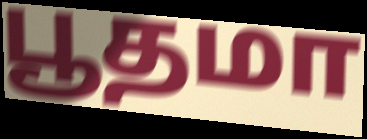
பூதமா